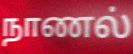
நாணல்